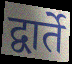
द्वार्ते